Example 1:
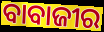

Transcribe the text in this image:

ବାବାଜୀର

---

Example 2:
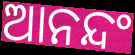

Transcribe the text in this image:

ଆନନ୍ଦଂ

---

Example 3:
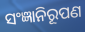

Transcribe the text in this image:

ସଂଜ୍ଞାନିରୂପଣ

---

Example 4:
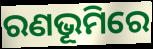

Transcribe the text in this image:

ରଣଭୂମିରେ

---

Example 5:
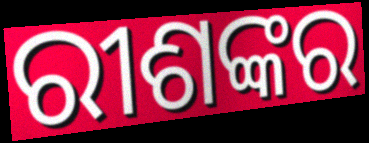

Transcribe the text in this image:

ରୀଶଙ୍କର